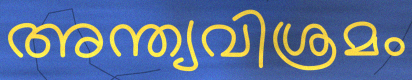
അന്ത്യവിശ്രമം